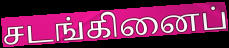
சடங்கினைப்